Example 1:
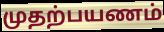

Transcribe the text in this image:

முதற்பயணம்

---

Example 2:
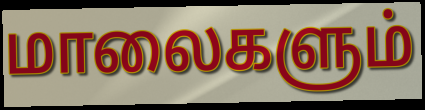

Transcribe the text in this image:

மாலைகளும்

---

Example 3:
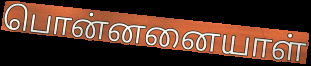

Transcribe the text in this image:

பொன்னனையாள்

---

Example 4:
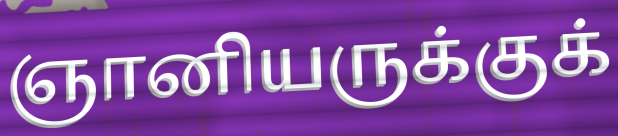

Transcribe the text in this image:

ஞானியருக்குக்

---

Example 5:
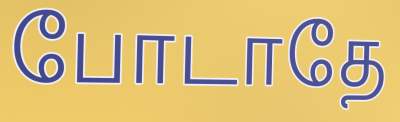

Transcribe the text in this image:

போடாதே